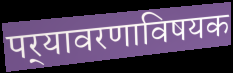
पर्यावरणाविषयक